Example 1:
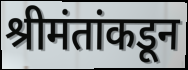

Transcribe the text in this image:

श्रीमंतांकडून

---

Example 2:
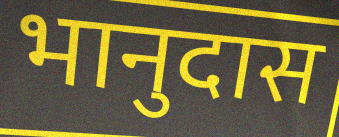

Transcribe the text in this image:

भानुदास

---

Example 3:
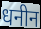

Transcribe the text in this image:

धनीन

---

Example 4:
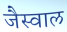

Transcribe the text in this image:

जैस्वाल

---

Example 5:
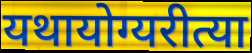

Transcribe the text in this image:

यथायोग्यरीत्या